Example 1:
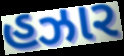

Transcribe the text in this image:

હઝાર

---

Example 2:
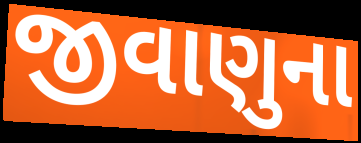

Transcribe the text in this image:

જીવાણુના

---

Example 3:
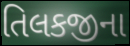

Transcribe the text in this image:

તિલકજીના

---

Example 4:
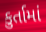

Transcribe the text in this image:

કુર્તામાં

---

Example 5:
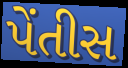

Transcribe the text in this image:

પેંતીસ